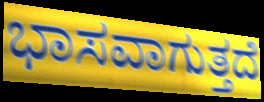
ಭಾಸವಾಗುತ್ತದೆ